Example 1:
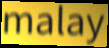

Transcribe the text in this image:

malay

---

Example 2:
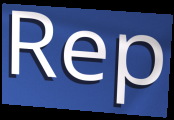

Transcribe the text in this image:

Rep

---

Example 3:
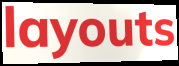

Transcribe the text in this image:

layouts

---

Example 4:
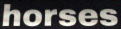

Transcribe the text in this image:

horses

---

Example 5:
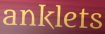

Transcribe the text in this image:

anklets